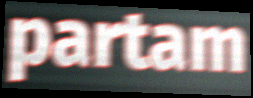
partam